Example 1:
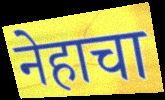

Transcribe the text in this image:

नेहाचा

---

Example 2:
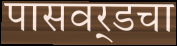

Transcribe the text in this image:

पासवर्डचा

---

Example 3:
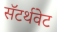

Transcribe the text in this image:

सॅटर्थवेट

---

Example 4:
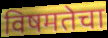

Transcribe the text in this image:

विषमतेचा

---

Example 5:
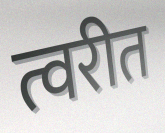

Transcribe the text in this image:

त्वरीत